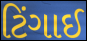
ટિંગાઈ